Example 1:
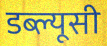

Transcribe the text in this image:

डब्ल्यूसी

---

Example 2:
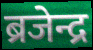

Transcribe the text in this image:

ब्रजेन्द्र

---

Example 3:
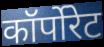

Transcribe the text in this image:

कॉर्पोरेट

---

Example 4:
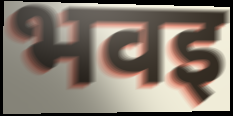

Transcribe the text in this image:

भवइ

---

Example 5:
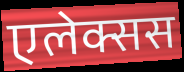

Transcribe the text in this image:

एलेक्सस